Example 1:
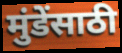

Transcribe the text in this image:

मुंडेंसाठी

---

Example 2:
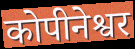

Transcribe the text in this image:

कोपीनेश्वर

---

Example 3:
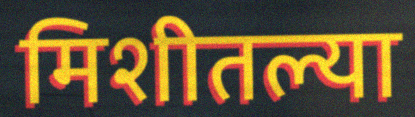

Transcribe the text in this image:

मिशीतल्या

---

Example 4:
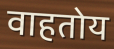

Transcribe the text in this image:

वाहतोय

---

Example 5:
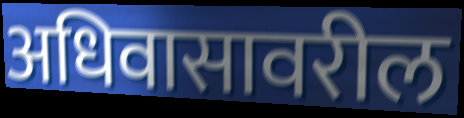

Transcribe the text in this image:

अधिवासावरील